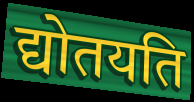
द्योतयति